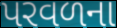
પરવળના